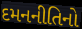
દમનનીતિનો